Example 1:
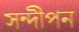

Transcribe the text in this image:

সন্দীপন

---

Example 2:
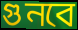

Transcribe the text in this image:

গুনবে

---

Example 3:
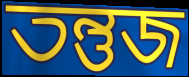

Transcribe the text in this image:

তন্তুজ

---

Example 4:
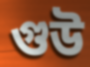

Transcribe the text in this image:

গুউ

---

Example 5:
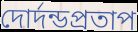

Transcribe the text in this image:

দোর্দন্ডপ্রতাপ